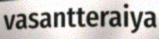
vasantteraiya